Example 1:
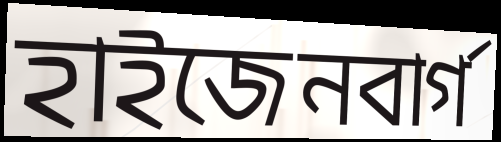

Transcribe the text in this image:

হাইজেনবাৰ্গ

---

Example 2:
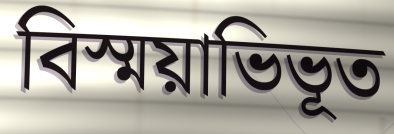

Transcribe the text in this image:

বিস্ময়াভিভূত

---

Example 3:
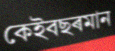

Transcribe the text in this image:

কেইবছৰমান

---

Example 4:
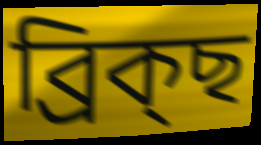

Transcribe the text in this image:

ব্ৰিক্‌ছ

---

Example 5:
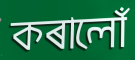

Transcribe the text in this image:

কৰালোঁ